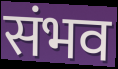
संभव